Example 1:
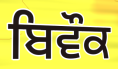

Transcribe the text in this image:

ਬਿਵੌਕ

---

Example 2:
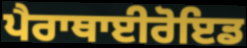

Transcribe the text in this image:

ਪੈਰਾਥਾਈਰੋਇਡ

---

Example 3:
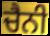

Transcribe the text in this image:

ਚੈਨੀ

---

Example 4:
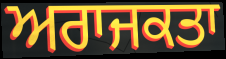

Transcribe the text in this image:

ਅਰਾਜਕਤਾ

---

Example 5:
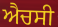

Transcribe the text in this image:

ਐਚਸੀ